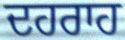
ਦਹਰਾਹ